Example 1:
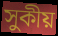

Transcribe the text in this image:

সুকীয়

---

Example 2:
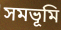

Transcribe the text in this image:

সমভূমি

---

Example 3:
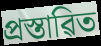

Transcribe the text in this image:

প্ৰস্তাৱিত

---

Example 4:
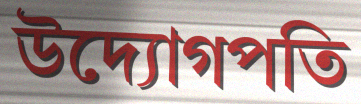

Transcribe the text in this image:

উদ্যোগপতি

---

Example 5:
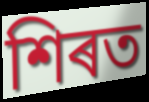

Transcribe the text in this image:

শিৰত